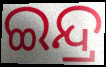
ଇନ୍ଦ୍ର